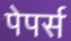
पेपर्स